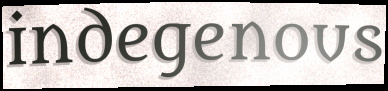
indegenous